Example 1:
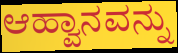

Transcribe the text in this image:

ಆಹ್ವಾನವನ್ನು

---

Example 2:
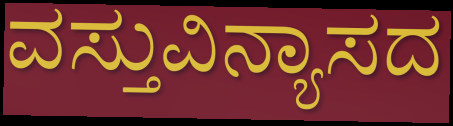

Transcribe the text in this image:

ವಸ್ತುವಿನ್ಯಾಸದ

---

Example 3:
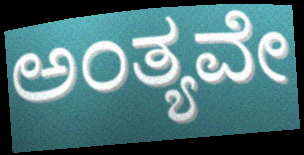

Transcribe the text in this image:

ಅಂತ್ಯವೇ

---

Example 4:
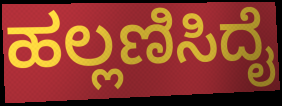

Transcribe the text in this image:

ಹಲ್ಲಣಿಸಿದೈ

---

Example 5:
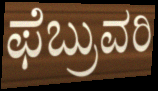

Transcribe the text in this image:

ಫೆಬ್ರುವರಿ